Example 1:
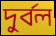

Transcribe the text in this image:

দুৰ্বল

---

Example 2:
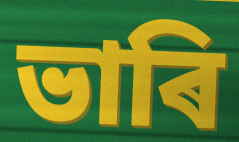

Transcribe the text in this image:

ভাৰি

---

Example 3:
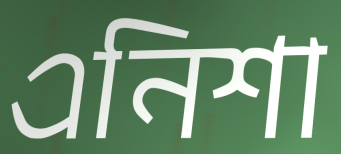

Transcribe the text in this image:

এনিশা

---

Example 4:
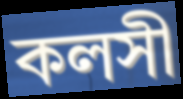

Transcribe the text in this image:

কলসী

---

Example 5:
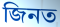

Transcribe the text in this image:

জিনত